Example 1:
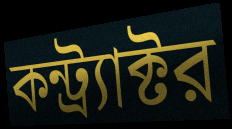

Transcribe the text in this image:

কন্ট্র্যাক্টর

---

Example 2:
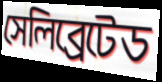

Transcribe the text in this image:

সেলিব্রেটেড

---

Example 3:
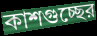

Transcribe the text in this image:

কাশগুচ্ছের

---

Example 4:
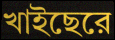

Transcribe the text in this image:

খাইছেরে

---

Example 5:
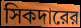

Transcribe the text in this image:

সিকদারের